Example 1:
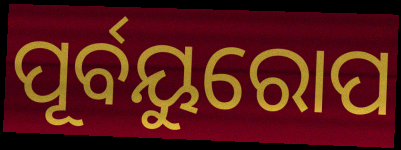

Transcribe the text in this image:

ପୂର୍ବୟୁରୋପ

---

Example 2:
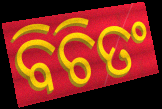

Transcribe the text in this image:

ବିଚିତଂ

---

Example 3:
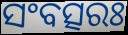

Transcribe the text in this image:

ସଂବତ୍ସରଃ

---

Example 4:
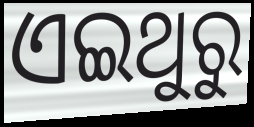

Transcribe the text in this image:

ଏଇଥୁରୁ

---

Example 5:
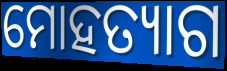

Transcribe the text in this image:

ମୋହତ୍ୟାଗ